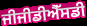
ਜੀਜੀਡੀਐੱਸਡੀ